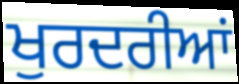
ਖੁਰਦਰੀਆਂ